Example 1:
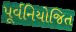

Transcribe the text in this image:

પૂર્વનિયોજિત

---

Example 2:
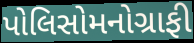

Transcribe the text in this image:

પોલિસોમનોગ્રાફી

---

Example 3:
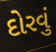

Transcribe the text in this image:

દોરવું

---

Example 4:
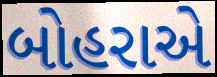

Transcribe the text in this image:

બોહરાએ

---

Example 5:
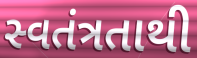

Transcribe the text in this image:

સ્વતંત્રતાથી